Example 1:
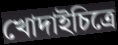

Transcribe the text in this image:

খোদাইচিত্রে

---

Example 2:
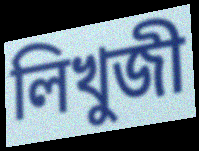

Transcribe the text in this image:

লিখুজী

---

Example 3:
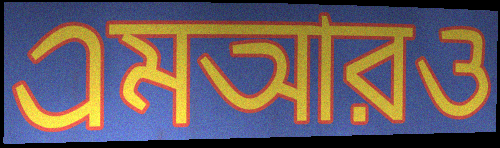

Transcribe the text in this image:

এমআরও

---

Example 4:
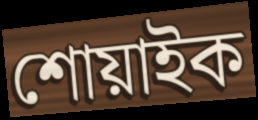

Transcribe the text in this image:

শোয়াইক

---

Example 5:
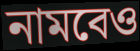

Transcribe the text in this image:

নামবেও